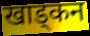
खाड्कन